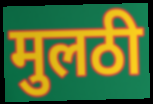
मुलठी